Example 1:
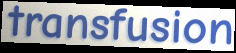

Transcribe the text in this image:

transfusion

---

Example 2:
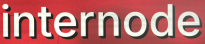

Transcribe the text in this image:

internode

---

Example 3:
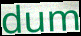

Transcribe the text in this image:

dum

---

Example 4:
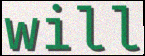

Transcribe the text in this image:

will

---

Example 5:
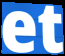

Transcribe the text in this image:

et